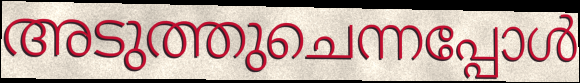
അടുത്തുചെന്നപ്പോൾ